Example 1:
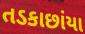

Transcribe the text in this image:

તડકાછાંયા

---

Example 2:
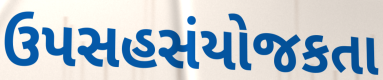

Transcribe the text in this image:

ઉપસહસંયોજકતા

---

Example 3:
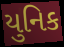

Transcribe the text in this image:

યુનિક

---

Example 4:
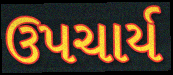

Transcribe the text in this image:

ઉપચાર્ય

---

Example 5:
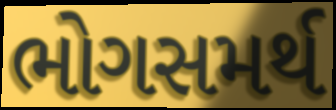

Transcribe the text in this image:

ભોગસમર્થ